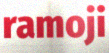
ramoji